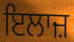
ਇਲਾਜ਼